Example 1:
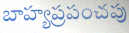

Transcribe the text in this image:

బాహ్యప్రపంచపు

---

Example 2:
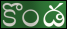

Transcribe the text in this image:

కొండ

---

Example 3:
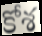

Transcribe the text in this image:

కోశ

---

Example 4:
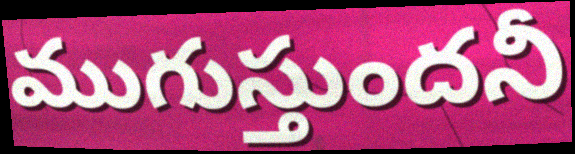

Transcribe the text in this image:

ముగుస్తుందనీ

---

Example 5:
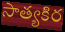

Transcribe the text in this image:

సాత్యకిర